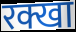
रक्खा